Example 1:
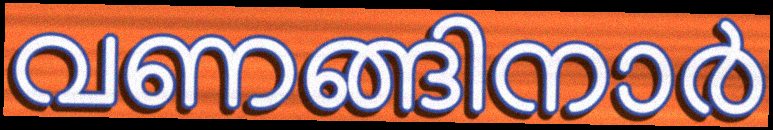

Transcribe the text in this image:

വണങ്ങിനാർ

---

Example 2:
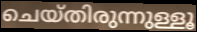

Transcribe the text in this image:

ചെയ്തിരുന്നുള്ളൂ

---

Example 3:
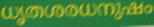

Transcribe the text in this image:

ധൃതശരധനുഷം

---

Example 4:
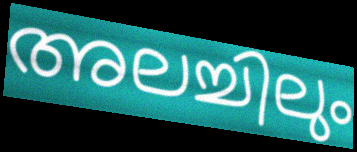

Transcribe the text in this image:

അലച്ചിലും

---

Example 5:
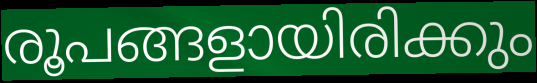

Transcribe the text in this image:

രൂപങ്ങളായിരിക്കും